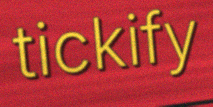
tickify